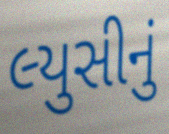
લ્યુસીનું